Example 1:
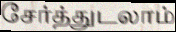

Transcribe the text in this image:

சேர்த்துடலாம்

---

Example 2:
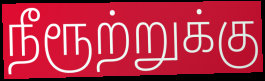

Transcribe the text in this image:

நீரூற்றுக்கு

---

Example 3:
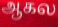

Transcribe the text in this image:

ஆகல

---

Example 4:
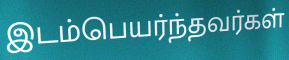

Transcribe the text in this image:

இடம்பெயர்ந்தவர்கள்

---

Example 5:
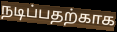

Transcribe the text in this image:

நடிப்பதற்காக